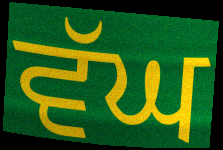
ਵੱਘ